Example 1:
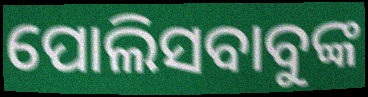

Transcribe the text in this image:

ପୋଲିସବାବୁଙ୍କ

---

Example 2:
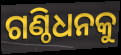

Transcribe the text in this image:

ଗଣ୍ଠିଧନକୁ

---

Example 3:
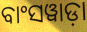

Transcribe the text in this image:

ବାଂସୱାଡ଼ା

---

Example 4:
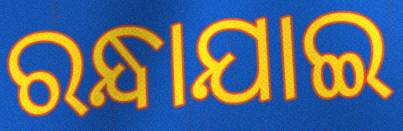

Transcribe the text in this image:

ରନ୍ଧାଯାଇ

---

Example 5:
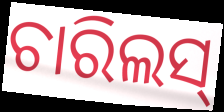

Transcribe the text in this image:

ଚାରିଲସ୍